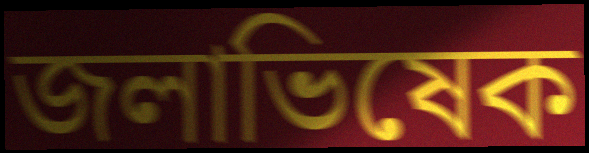
জলাভিষেক